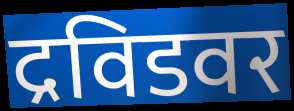
द्रविडवर